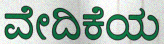
ವೇದಿಕೆಯ